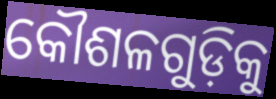
କୌଶଳଗୁଡ଼ିକୁ